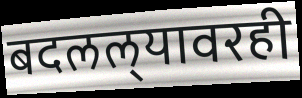
बदलल्यावरही